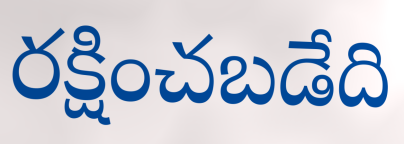
రక్షించబడేది